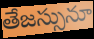
తేజస్సునూ